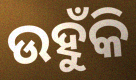
ଉହୁଁକି